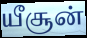
யீசூன்